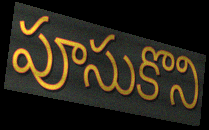
పూసుకొని